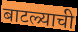
बाटल्याची